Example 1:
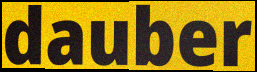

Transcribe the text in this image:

dauber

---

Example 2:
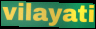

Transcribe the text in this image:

vilayati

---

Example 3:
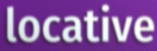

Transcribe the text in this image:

locative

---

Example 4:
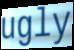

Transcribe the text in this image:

ugly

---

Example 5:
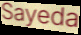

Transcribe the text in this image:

Sayeda